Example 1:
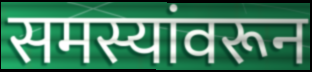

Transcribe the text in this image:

समस्यांवरून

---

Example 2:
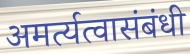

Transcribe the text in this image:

अमर्त्यत्वासंबंधी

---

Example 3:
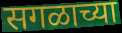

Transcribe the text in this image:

सगळाच्या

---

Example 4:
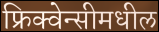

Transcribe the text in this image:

फ्रिक्वेन्सीमधील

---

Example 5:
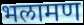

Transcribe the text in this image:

भलामण